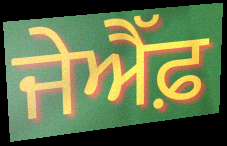
ਜੇਐੱਫ਼